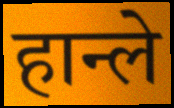
हान्ले